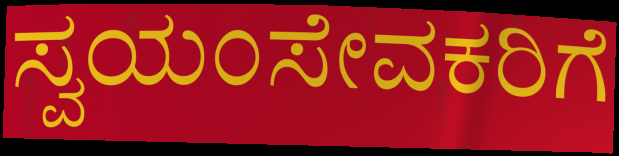
ಸ್ವಯಂಸೇವಕರಿಗೆ